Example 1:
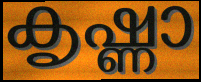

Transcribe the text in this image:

കൃഷ്ണാ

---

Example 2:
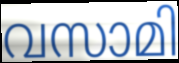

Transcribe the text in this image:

വസാമി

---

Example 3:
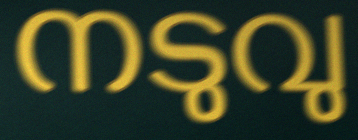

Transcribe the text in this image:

നടുവു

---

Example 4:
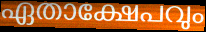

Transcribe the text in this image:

ഏതാക്ഷേപവും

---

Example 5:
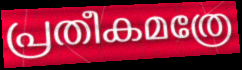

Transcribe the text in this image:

പ്രതീകമത്രേ